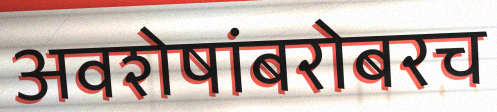
अवशेषांबरोबरच